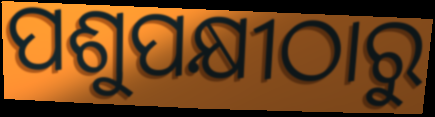
ପଶୁପକ୍ଷୀଠାରୁ